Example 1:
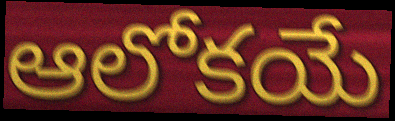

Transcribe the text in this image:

ఆలోకయే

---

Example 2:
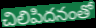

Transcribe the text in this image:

చిలిపిదనంతో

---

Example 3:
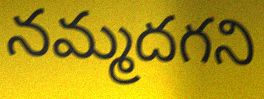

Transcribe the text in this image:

నమ్మదగని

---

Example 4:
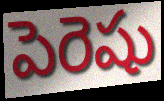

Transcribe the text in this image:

పెరెషు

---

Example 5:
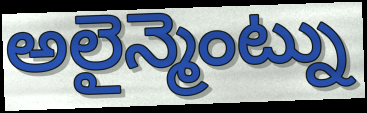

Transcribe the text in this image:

అలైన్మెంట్ను